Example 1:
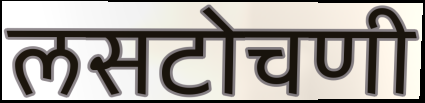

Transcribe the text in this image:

लसटोचणी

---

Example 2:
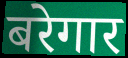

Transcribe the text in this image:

बरेगार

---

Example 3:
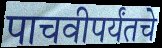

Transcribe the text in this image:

पाचवीपर्यंतचे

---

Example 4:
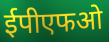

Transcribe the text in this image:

ईपीएफओ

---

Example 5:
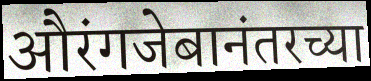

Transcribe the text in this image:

औरंगजेबानंतरच्या